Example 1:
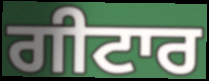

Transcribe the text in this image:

ਗੀਟਾਰ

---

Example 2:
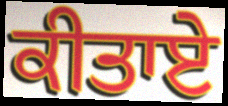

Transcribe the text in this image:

ਕੀਤਾਏ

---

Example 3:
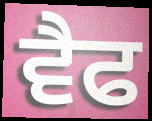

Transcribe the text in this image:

ਵੈਫ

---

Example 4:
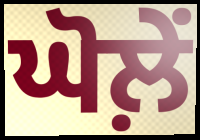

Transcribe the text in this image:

ਘੋਲ਼ੇਂ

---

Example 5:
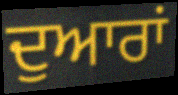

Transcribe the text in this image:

ਦੁਆਰਾਂ